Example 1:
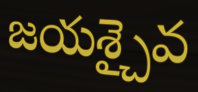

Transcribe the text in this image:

జయశ్చైవ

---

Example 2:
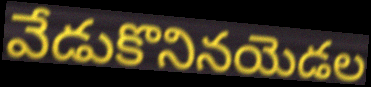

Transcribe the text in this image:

వేడుకొనినయెడల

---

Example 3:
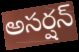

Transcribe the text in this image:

అసర్షన్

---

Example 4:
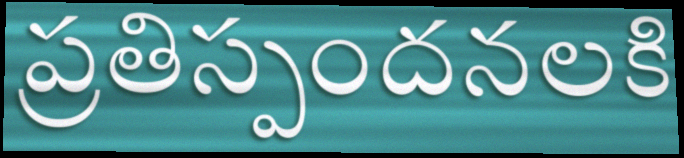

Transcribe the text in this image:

ప్రతిస్పందనలకి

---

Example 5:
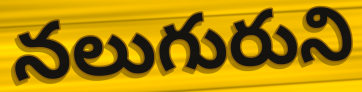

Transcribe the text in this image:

నలుగురుని